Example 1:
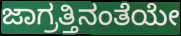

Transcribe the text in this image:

ಜಾಗ್ರತ್ತಿನಂತೆಯೇ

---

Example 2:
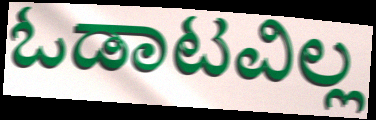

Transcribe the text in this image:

ಓಡಾಟವಿಲ್ಲ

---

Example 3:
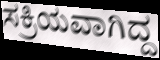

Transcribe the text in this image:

ಸಕ್ರಿಯವಾಗಿದ್ದ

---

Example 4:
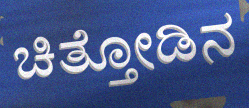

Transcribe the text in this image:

ಚಿತ್ತೋಡಿನ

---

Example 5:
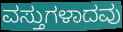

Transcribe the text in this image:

ವಸ್ತುಗಳಾದವು